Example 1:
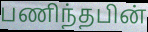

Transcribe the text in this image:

பணிந்தபின்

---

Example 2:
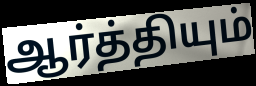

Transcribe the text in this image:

ஆர்த்தியும்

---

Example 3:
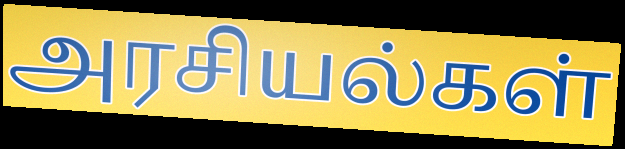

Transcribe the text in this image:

அரசியல்கள்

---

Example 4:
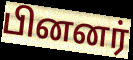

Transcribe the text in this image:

பினனர்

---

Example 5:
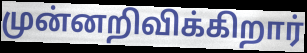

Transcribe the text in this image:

முன்னறிவிக்கிறார்